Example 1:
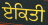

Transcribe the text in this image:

ਏਕਿਤੀ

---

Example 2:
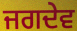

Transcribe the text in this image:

ਜਗਦੇਵ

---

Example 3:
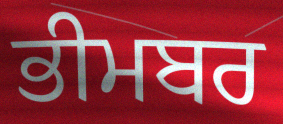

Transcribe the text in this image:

ਭੀਮਬਰ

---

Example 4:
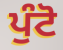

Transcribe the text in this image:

ਪੁੰਟੋ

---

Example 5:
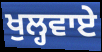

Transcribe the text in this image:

ਖੁਲ੍ਹਵਾਏ